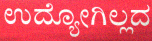
ಉದ್ಯೋಗಿಲ್ಲದ